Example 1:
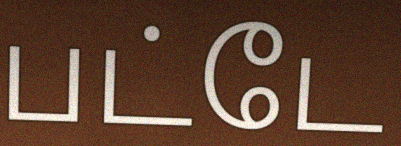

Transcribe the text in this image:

பட்டே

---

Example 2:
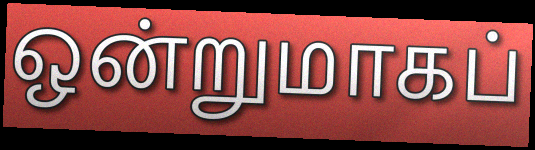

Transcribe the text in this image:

ஒன்றுமாகப்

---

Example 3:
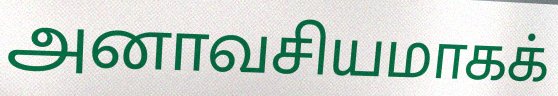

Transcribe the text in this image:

அனாவசியமாகக்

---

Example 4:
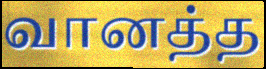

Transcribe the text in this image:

வானத்த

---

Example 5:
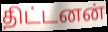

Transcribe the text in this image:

திட்டனன்